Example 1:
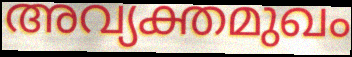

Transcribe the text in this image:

അവ്യക്തമുഖം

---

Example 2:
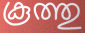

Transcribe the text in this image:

കൂത്തു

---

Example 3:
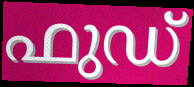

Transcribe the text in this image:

ഫുഡ്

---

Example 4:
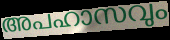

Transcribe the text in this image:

അപഹാസവും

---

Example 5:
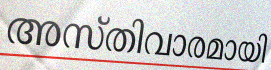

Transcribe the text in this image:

അസ്തിവാരമായി